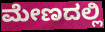
ಮೇಣದಲ್ಲಿ